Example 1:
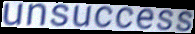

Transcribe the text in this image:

unsuccess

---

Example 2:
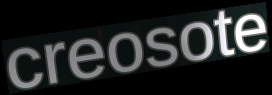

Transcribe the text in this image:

creosote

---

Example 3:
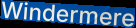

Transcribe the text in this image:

Windermere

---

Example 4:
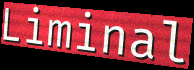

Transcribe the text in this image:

Liminal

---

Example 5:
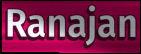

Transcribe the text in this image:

Ranajan